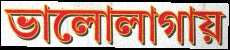
ভালোলাগায়